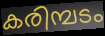
കരിമ്പടം